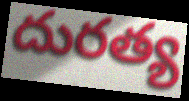
దురత్య